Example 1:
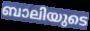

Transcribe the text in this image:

ബാലിയുടെ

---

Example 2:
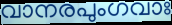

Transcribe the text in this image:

വാനരപുംഗവാഃ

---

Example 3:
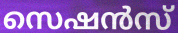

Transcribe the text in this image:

സെഷൻസ്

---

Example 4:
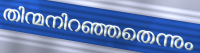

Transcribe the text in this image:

തിന്മനിറഞ്ഞതെന്നും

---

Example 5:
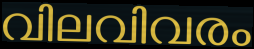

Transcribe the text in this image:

വിലവിവരം